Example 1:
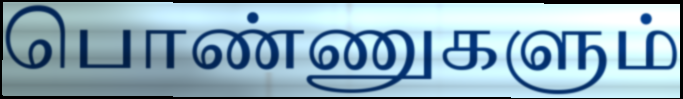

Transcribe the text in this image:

பொண்ணுகளும்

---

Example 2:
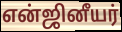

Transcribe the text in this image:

என்ஜினீயர்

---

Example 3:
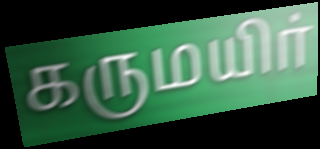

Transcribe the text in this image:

கருமயிர்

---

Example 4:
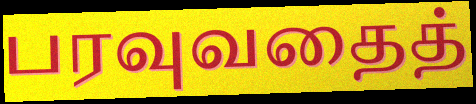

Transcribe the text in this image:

பரவுவதைத்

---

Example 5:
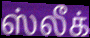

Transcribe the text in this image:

ஸ்லீக்